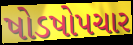
ષોડષોપચાર